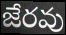
జేరవు